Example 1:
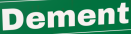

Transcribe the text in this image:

Dement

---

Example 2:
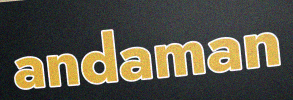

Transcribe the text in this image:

andaman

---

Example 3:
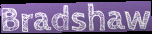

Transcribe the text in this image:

Bradshaw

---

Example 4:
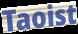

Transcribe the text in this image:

Taoist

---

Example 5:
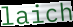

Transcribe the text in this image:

laich